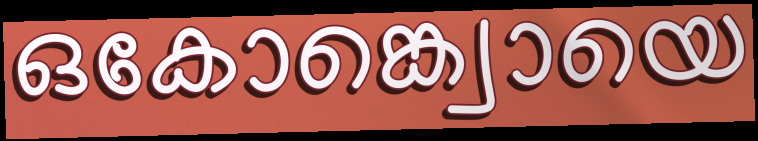
ഒകോങ്ക്വൊയെ